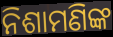
ନିଶାମଣିଙ୍କ